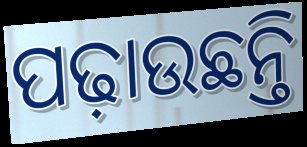
ପଢ଼ାଉଛନ୍ତି